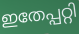
ഇതേപ്പറ്റി